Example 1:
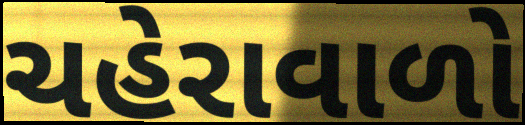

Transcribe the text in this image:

ચહેરાવાળો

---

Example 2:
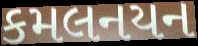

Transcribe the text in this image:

કમલનયન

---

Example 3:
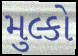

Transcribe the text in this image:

મુલ્કો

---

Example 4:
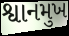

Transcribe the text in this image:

શ્વાનમુખ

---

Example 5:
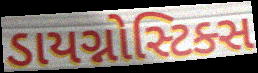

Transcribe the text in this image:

ડાયગ્નોસ્ટિક્સ